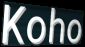
Koho